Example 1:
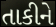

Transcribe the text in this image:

તાકીને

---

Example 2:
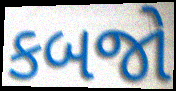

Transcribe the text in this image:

કબજો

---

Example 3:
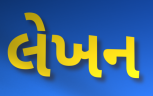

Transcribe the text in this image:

લેખન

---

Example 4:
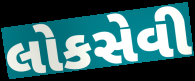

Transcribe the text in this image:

લોકસેવી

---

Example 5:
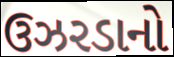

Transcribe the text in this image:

ઉઝરડાનો